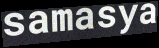
samasya